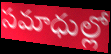
సమాధుల్లో